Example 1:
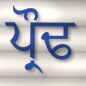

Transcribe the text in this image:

ਪ੍ਰੌਢ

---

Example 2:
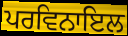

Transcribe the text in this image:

ਪਰਵਿਨਾਇਲ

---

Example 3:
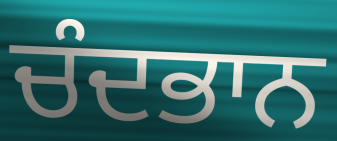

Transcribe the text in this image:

ਚੰਦਭਾਨ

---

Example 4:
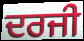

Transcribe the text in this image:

ਦਰਜੀ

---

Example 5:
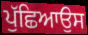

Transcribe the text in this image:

ਪੁੱਛਿਆਉਸ